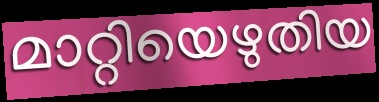
മാറ്റിയെഴുതിയ